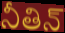
నీతిన్